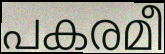
പകരമീ